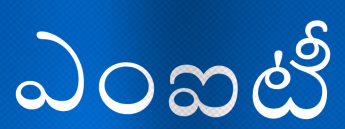
ఎంఐటీ